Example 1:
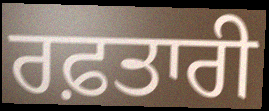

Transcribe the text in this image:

ਰਫ਼ਤਾਰੀ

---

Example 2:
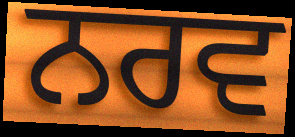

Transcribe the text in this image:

ਨਰਵ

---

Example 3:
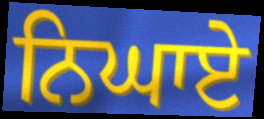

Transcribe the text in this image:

ਨਿਘਾਏ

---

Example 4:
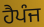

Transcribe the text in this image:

ਹੈਪੰਜ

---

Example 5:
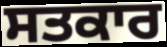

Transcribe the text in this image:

ਸਤਕਾਰ